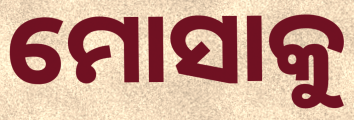
ମୋସାକୁ